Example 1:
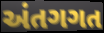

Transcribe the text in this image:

અંતગગત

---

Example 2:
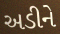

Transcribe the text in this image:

અડીને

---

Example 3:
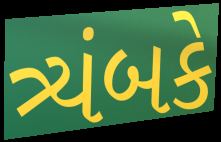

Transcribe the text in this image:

ત્ર્યંબકે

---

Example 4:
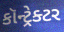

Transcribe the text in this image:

કૉન્ટ્રેક્ટર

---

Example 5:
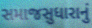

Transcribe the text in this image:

સમાજસુધારાનું